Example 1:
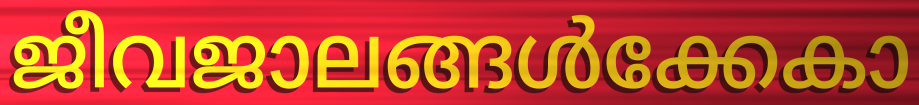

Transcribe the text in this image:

ജീവജാലങ്ങൾക്കേകാ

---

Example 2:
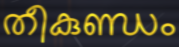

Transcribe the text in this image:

തീകുണ്ഡം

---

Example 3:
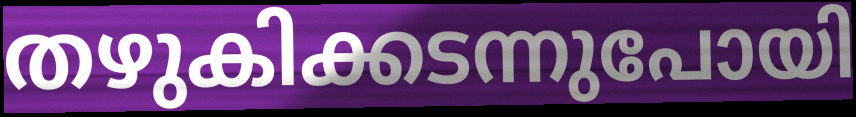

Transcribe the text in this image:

തഴുകിക്കടന്നുപോയി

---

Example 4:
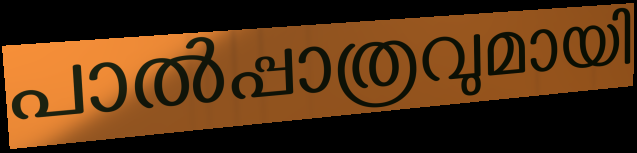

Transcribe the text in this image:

പാൽപ്പാത്രവുമായി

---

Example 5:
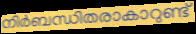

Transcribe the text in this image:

നിർബന്ധിതരാകാറുണ്ട്